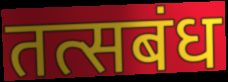
तत्सबंध